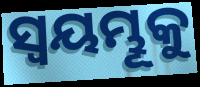
ସ୍ଵୟମ୍ଭୂକୁ